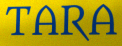
TARA